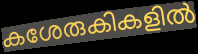
കശേരുകികളിൽ